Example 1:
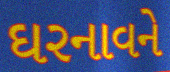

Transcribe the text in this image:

ઘરનાવને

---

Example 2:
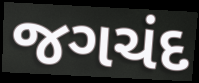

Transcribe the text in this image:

જગચંદ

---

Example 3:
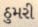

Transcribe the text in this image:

ઠુમરી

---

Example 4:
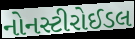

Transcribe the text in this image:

નોનસ્ટીરોઈડલ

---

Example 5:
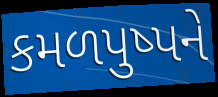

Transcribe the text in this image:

કમળપુષ્પને